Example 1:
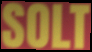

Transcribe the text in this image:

SOLT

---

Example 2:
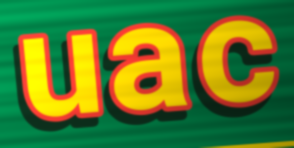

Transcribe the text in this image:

uac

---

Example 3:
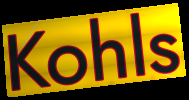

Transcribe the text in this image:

Kohls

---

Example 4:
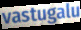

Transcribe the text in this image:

vastugalu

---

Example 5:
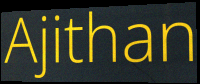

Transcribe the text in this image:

Ajithan